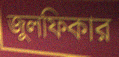
জুলফিকার